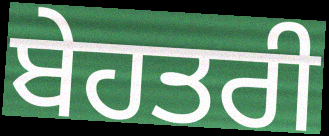
ਬੇਹਤਰੀ